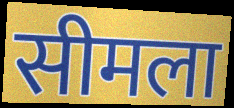
सीमला